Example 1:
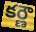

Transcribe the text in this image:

కర్ణౌ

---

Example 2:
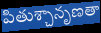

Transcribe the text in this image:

పితుశ్చానృణతా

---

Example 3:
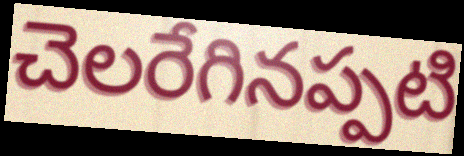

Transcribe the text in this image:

చెలరేగినప్పటి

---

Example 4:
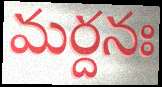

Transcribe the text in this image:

మర్దనః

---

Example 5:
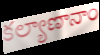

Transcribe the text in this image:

కల్యాణానాం